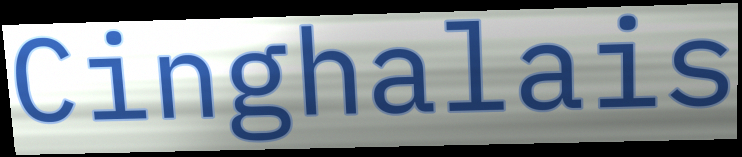
Cinghalais